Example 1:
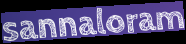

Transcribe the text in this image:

sannaloram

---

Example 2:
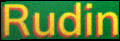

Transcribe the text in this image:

Rudin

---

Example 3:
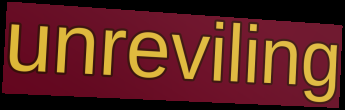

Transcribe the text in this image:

unreviling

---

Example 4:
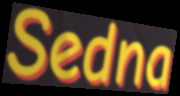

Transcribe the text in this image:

Sedna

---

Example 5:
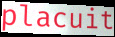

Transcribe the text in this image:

placuit